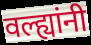
वल्ह्यांनी